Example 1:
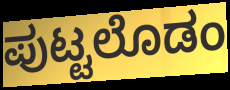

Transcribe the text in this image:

ಪುಟ್ಟಲೊಡಂ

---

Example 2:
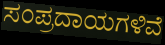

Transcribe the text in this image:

ಸಂಪ್ರದಾಯಗಳಿವೆ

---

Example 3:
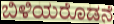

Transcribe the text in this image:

ಬಿಳಿಯರೊಡನೆ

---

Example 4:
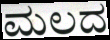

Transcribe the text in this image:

ಮಲದ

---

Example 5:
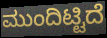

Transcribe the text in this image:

ಮುಂದಿಟ್ಟಿದೆ